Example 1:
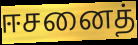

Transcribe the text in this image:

ஈசனைத்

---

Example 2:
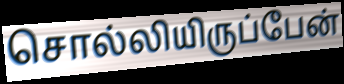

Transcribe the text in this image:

சொல்லியிருப்பேன்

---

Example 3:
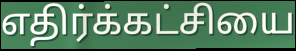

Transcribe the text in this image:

எதிர்க்கட்சியை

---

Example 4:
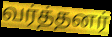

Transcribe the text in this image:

வர்த்தனர்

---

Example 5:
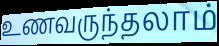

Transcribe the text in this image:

உணவருந்தலாம்